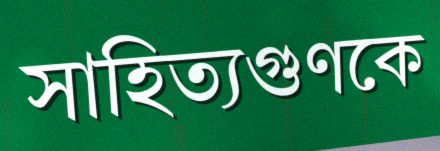
সাহিত্যগুণকে